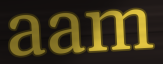
aam